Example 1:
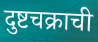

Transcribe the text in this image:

दुष्टचक्राची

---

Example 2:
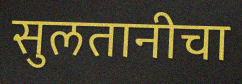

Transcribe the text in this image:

सुलतानीचा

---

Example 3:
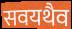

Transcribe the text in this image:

सवयथैव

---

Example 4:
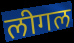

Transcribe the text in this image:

लीगल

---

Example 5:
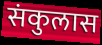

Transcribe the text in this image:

संकुलास